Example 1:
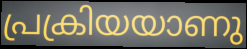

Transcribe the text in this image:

പ്രക്രിയയാണു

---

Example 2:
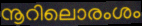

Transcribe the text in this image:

നൂറിലൊരംശം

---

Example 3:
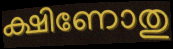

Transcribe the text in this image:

ക്ഷിണോതു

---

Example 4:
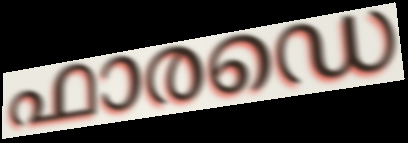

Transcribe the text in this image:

ഫാരഡെ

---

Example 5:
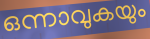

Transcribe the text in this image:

ഒന്നാവുകയും